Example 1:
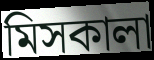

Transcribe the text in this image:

মিসকালা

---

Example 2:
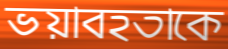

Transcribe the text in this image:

ভয়াবহতাকে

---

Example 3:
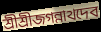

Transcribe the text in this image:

শ্রীশ্রীজগন্নাথদেব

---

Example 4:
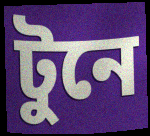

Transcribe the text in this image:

টুনে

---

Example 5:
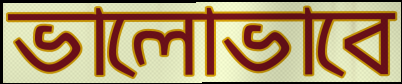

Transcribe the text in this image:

ভালোভাবে